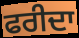
ਫਰੀਦਾ